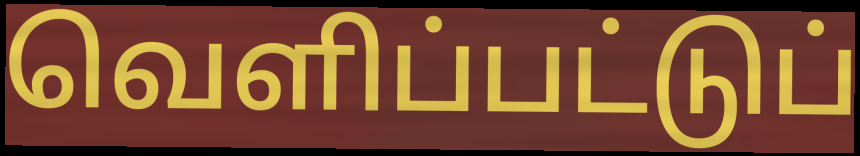
வெளிப்பட்டுப்